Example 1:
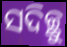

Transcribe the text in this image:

ସଦିଚ୍ଛୁ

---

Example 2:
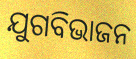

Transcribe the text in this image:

ଯୁଗବିଭାଜନ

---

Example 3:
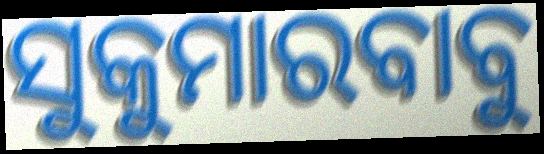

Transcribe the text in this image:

ସୁକୁମାରବାବୁ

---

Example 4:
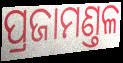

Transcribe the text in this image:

ପ୍ରଜାମଣ୍ତଳ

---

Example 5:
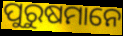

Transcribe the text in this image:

ପୁରୁଷମାନେ